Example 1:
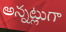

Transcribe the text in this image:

అన్నట్లుగా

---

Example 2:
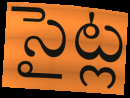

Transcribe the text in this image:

సైట్ల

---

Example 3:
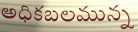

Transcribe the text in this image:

అధికబలమున్న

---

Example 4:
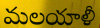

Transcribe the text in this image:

మలయాళీ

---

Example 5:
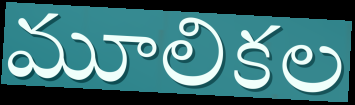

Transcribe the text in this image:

మూలికల